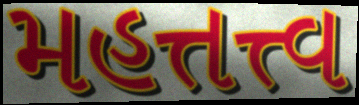
મહત્તત્ત્વ